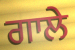
ਗਾਲੇ